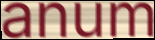
anum